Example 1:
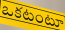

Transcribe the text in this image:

ఒకటంటూ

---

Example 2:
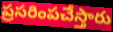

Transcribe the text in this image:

ప్రసరింపచేస్తారు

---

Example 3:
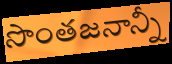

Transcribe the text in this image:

సొంతజనాన్నీ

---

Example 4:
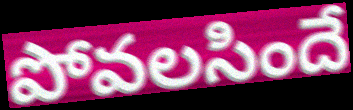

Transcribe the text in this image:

పోవలసిందే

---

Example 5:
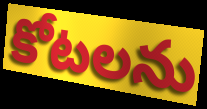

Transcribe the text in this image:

కోటలను